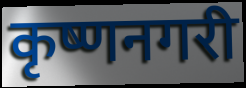
कृष्णनगरी